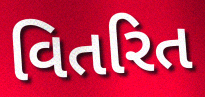
વિતરિત